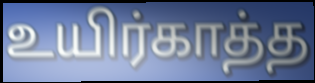
உயிர்காத்த